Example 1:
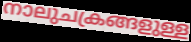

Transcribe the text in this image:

നാലുചക്രങ്ങളുള്ള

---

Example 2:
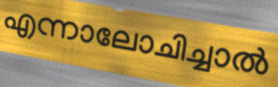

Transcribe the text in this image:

എന്നാലോചിച്ചാൽ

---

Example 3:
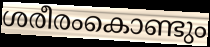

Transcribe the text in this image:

ശരീരംകൊണ്ടും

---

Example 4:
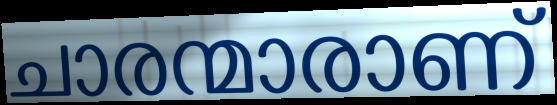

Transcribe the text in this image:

ചാരന്മാരാണ്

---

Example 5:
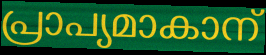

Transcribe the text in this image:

പ്രാപ്യമാകാന്